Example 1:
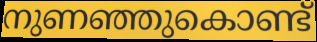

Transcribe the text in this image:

നുണഞ്ഞുകൊണ്ട്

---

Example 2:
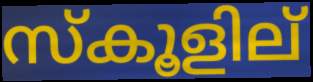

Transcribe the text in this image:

സ്കൂളില്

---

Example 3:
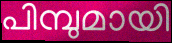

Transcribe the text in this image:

പിമ്പുമായി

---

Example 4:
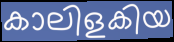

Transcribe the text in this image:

കാലിളകിയ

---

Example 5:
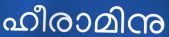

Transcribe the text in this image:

ഹീരാമിനു